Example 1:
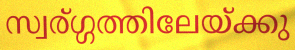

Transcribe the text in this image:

സ്വര്ഗ്ഗത്തിലേയ്ക്കു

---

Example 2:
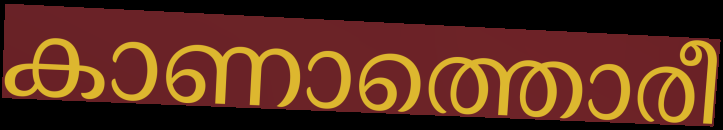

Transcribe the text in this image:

കാണാത്തൊരീ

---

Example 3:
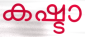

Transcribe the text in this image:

കഷ്ടാ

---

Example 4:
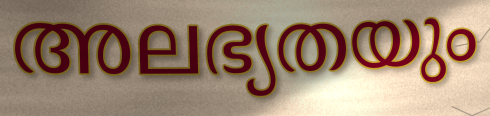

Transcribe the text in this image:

അലഭ്യതയും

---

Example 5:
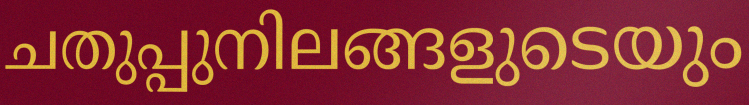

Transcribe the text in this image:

ചതുപ്പുനിലങ്ങളുടെയും